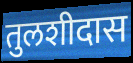
तुलशीदास